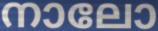
നാലോ